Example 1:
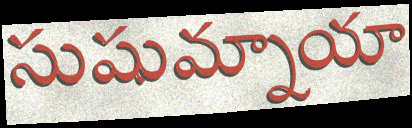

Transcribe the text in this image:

సుషుమ్నాయా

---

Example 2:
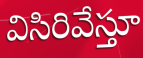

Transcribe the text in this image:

విసిరివేస్తూ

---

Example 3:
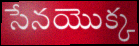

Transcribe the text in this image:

సేనయొక్క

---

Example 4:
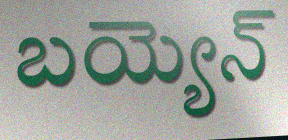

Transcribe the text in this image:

బయ్యెన్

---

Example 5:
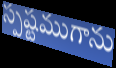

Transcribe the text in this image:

స్పష్టముగాను